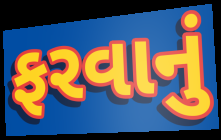
ફરવાનું